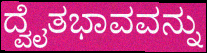
ದ್ವೈತಭಾವವನ್ನು